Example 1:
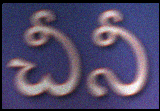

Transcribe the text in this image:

చీనీ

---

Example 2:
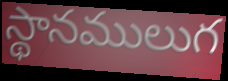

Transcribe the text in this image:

స్థానములుగ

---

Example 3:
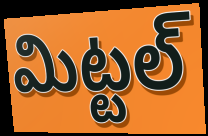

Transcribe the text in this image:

మిట్టల్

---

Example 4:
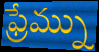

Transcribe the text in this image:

ఫ్రేమ్ను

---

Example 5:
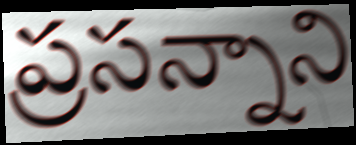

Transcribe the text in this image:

ప్రసన్నాని